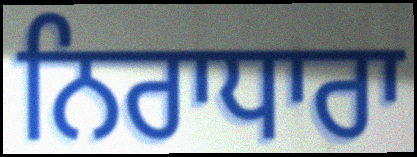
ਨਿਰਾਧਾਰਾ